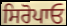
ਸਿਰੋਪਾਓ